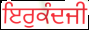
ਇਰੁਕੰਦਜੀ